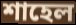
শাহেল